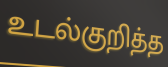
உடல்குறித்த